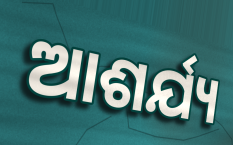
ଆଶର୍ଯ୍ୟ